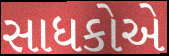
સાધકોએ